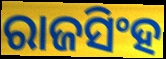
ରାଜସିଂହ